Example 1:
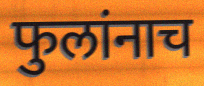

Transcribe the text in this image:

फुलांनाच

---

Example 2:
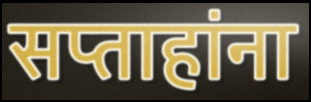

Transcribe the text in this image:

सप्ताहांना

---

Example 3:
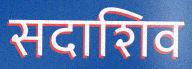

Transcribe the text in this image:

सदाशिव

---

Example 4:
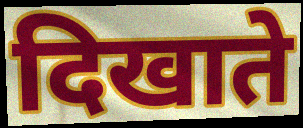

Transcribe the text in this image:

दिखाते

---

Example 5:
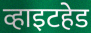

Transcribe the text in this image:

व्हाइटहेड